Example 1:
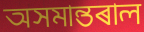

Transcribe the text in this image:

অসমান্তৰাল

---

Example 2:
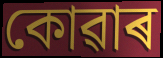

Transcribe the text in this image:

কোৱাৰ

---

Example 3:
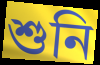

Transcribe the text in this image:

শুনি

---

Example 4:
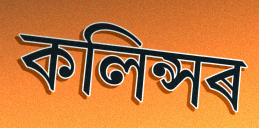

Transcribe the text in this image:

কলিন্সৰ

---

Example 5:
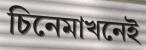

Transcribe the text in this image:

চিনেমাখনেই